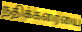
நதிக்கரையை